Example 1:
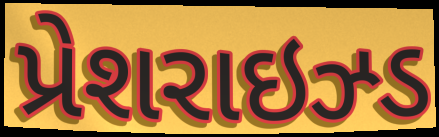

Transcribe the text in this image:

પ્રેશરાઇઝ્ડ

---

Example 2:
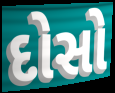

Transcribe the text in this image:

દોસો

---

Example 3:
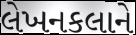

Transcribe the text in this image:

લેખનકલાને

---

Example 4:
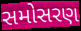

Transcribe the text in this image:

સમોસરણ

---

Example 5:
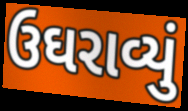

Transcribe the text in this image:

ઉઘરાવ્યું